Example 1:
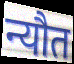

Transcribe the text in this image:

न्यौत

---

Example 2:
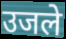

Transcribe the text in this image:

उजले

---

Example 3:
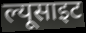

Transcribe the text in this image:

ल्यूसाइट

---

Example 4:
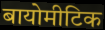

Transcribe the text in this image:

बायोमीटिक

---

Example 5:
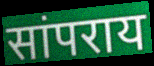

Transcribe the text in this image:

सांपराय